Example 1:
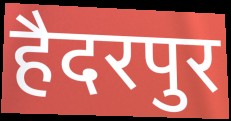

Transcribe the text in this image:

हैदरपुर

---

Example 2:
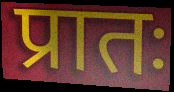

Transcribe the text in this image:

प्रातः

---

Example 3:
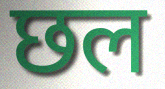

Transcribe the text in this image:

छल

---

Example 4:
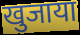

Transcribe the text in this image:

खुजाया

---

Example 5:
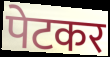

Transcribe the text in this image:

पेटकर